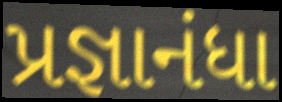
પ્રજ્ઞાનંધા